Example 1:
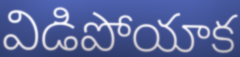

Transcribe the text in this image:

విడిపోయాక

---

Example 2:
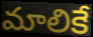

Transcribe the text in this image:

మాలికే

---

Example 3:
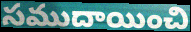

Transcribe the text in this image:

సముదాయించి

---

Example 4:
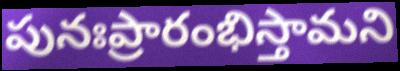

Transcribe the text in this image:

పునఃప్రారంభిస్తామని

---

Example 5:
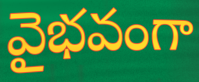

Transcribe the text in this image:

వైభవంగా